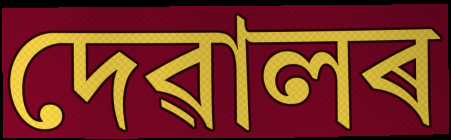
দেৱালৰ